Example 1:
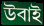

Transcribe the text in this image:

উবাই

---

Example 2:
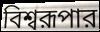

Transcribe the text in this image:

বিশ্বরূপার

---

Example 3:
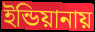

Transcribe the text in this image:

ইন্ডিয়ানায়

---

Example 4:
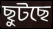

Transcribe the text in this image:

ছুটছে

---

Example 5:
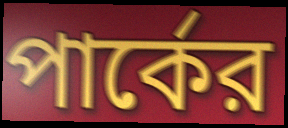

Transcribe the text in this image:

পার্কের